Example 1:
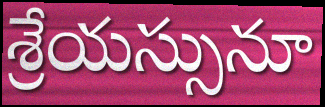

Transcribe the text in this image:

శ్రేయస్సునూ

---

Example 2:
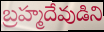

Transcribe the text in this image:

బ్రహ్మదేవుడిని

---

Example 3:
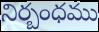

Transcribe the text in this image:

నిర్బంధము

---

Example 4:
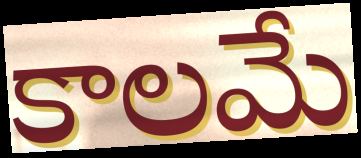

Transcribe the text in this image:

కాలమే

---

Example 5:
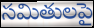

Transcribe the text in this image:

సమితులపై